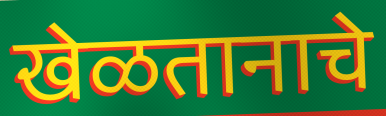
खेळतानाचे